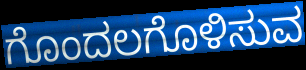
ಗೊಂದಲಗೊಳಿಸುವ